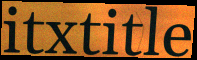
itxtitle